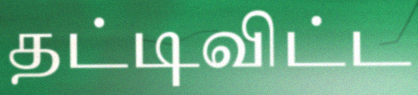
தட்டிவிட்ட